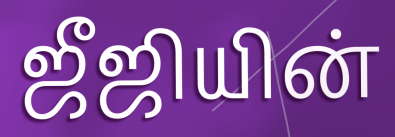
ஜீஜியின்